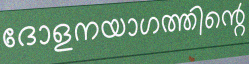
ദോളനയാഗത്തിന്റെ